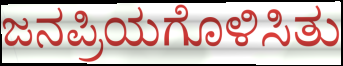
ಜನಪ್ರಿಯಗೊಳಿಸಿತು